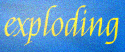
exploding